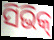
ସିଭିକ୍